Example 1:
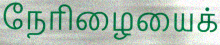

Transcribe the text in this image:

நேரிழையைக்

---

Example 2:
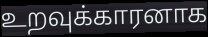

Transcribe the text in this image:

உறவுக்காரனாக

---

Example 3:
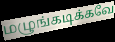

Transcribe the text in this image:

மழுங்கடிக்கவே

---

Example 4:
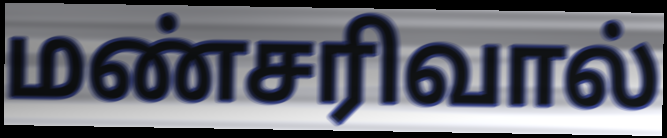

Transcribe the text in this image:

மண்சரிவால்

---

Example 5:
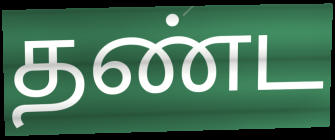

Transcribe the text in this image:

தண்ட